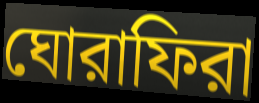
ঘোরাফিরা